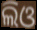
ଲିଓ